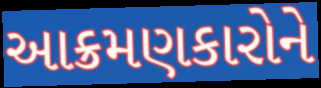
આક્રમણકારોને